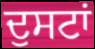
ਦੁਸਟਾਂ